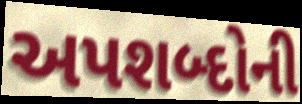
અપશબ્દોની